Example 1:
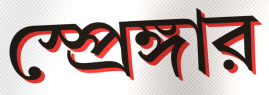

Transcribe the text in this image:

স্প্রেঙ্গার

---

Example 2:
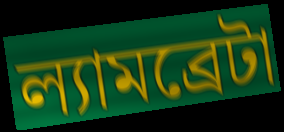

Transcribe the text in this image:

ল্যামব্রেটা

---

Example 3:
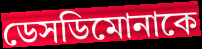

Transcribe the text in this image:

ডেসডিমোনাকে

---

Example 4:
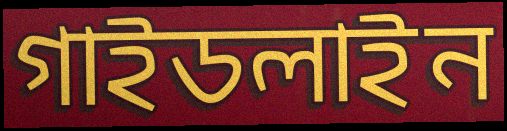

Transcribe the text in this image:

গাইডলাইন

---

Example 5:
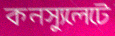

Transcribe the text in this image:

কনস্যুলেটে